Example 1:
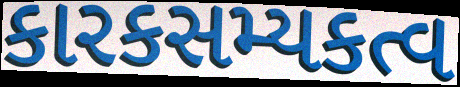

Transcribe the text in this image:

કારકસમ્યકત્વ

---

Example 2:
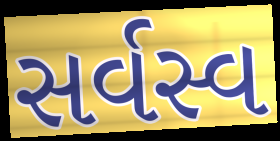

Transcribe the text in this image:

સર્વસ્વ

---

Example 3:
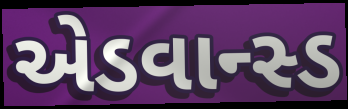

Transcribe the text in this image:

એડવાન્સ્ડ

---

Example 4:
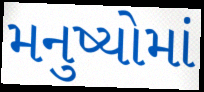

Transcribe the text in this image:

મનુષ્યોમાં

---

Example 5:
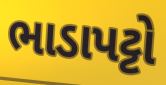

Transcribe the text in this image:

ભાડાપટ્ટો